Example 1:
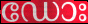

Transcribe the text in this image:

ഡോഃ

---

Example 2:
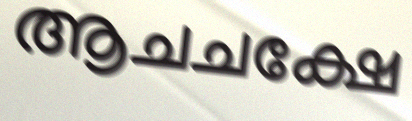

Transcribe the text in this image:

ആചചക്ഷേ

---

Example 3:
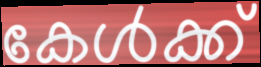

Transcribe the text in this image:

കേൾക്ക്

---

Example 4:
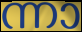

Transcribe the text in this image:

ന്നാ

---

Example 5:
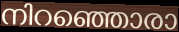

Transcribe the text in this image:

നിറഞ്ഞൊരാ